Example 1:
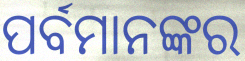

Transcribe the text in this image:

ପର୍ବମାନଙ୍କର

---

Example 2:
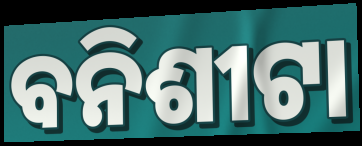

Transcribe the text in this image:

ବନିଶୀଟା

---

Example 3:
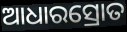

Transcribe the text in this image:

ଆଧାରସ୍ରୋତ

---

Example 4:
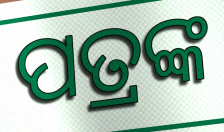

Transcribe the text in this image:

ପତ୍ରଙ୍କ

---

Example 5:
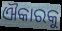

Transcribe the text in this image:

ଐକାରକୁ